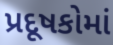
પ્રદૂષકોમાં